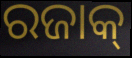
ରଜାକ୍